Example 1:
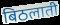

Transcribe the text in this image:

बिठलाती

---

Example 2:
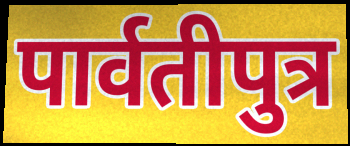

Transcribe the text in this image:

पार्वतीपुत्र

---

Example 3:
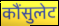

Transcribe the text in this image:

कौंसुलेट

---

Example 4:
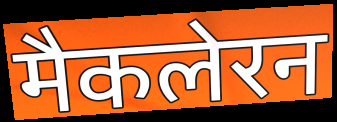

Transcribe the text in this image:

मैकलेरन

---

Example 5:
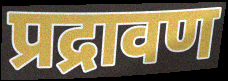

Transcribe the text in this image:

प्रद्रावण